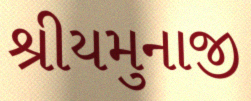
શ્રીયમુનાજી